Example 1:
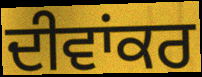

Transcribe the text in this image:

ਦੀਵਾਂਕਰ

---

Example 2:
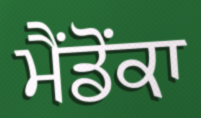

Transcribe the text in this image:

ਮੈਂਡੋਂਕਾ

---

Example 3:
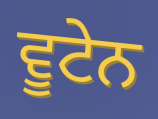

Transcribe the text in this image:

ਵੂਟੇਨ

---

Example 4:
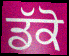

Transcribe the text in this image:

ਡੱਕੋ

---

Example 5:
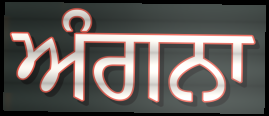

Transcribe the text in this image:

ਅੰਗਨਾ